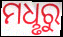
ମଧୢରୁ